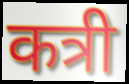
कत्री